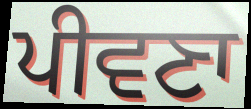
ਪੀਵਣਾ